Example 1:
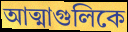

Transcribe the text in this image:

আত্মাগুলিকে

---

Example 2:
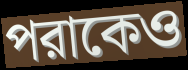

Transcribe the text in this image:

পরাকেও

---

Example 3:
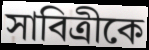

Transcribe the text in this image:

সাবিত্রীকে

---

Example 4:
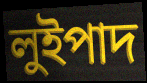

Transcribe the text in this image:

লুইপাদ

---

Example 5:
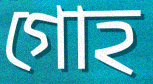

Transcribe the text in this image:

গোহ